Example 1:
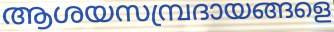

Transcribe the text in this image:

ആശയസമ്പ്രദായങ്ങളെ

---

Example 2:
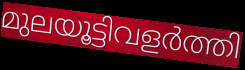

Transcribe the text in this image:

മുലയൂട്ടിവളർത്തി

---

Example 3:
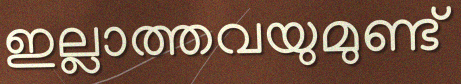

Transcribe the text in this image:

ഇല്ലാത്തവയുമുണ്ട്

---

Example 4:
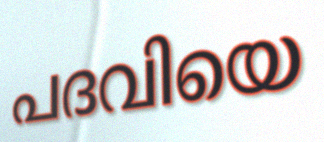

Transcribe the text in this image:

പദവിയെ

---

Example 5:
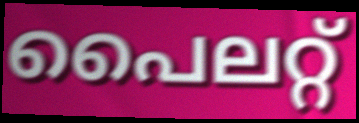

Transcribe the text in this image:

പൈലറ്റ്